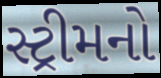
સ્ટ્રીમનો